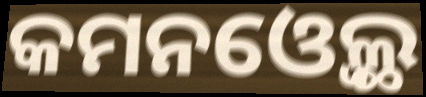
କମନଓ୍ବେଲ୍ଥ